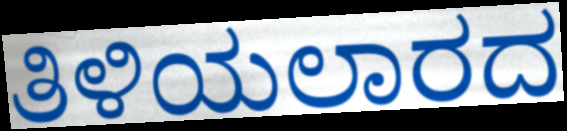
ತಿಳಿಯಲಾರದ